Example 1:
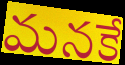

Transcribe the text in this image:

మనకే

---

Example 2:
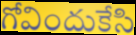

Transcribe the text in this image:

గోవిందుకేసి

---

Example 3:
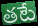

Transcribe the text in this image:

తటే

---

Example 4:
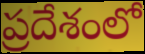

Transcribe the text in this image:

ప్రదేశంలో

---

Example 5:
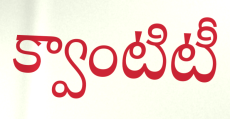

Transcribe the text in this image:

క్వాంటిటీ